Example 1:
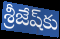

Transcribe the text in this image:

శ్రీజేష్‌కు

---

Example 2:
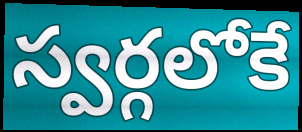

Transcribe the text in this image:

స్వర్గలోకే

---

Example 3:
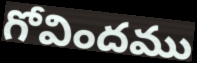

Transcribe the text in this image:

గోవిందము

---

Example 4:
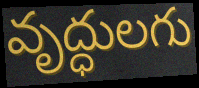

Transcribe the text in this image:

వృద్ధులగు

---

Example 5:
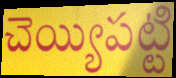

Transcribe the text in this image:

చెయ్యిపట్టి